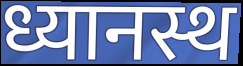
ध्यानस्थ